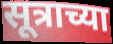
सूत्राच्या